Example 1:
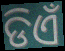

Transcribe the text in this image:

ଡିଏଁ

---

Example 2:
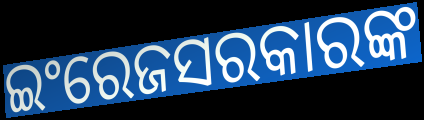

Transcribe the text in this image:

ଇଂରେଜସରକାରଙ୍କ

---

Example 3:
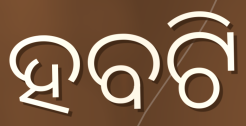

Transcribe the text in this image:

ହବଟି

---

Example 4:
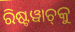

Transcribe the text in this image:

ରିଷ୍ଟୱାଚ୍‌କୁ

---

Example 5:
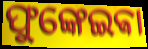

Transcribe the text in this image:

ଫୁଙ୍କେଇଵା